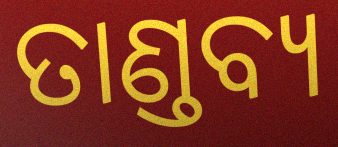
ତାଣ୍ଡବ୍ୟ